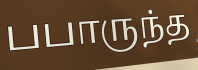
பபாருந்த